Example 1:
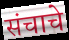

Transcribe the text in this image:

संचाचे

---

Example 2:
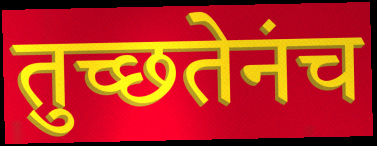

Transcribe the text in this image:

तुच्छतेनंच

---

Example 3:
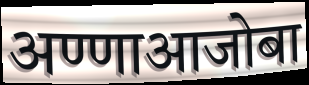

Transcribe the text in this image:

अण्णाआजोबा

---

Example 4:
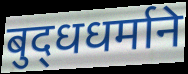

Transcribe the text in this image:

बुद्धधर्माने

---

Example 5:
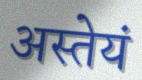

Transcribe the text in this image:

अस्तेयं